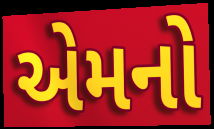
એમનો